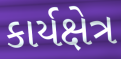
કાર્યક્ષેત્ર